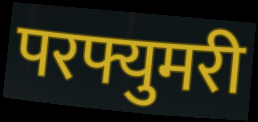
परफ्युमरी